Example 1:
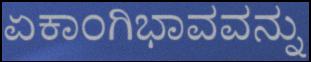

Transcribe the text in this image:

ಏಕಾಂಗಿಭಾವವನ್ನು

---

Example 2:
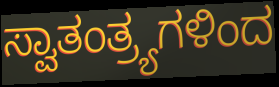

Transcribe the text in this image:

ಸ್ವಾತಂತ್ರ್ಯಗಳಿಂದ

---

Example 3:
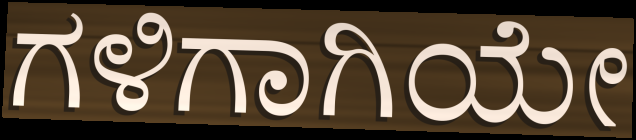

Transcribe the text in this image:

ಗಳಿಗಾಗಿಯೇ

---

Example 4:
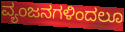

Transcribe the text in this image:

ವ್ಯಂಜನಗಳಿಂದಲೂ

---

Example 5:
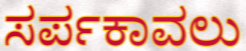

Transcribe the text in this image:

ಸರ್ಪಕಾವಲು